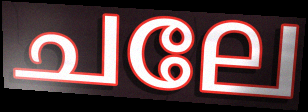
ചലേ